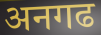
अनगढ